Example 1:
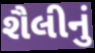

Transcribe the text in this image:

શૈલીનું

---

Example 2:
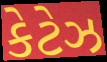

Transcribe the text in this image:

કેટેઝ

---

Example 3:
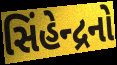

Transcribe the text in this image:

સિંહેન્દ્રનો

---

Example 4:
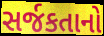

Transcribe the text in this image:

સર્જકતાનો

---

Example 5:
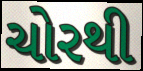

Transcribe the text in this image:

ચોરથી